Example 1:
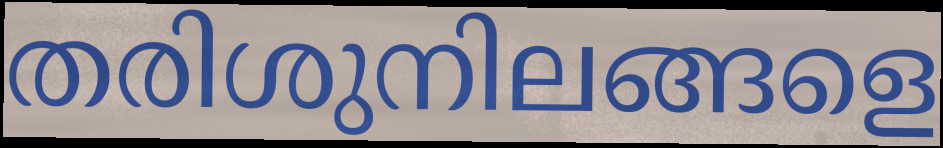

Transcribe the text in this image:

തരിശുനിലങ്ങളെ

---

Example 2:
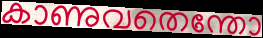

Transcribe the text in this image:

കാണുവതെന്തോ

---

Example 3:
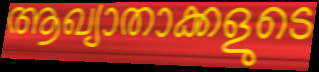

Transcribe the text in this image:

ആഖ്യാതാക്കളുടെ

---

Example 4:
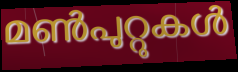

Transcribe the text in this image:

മൺപുറ്റുകൾ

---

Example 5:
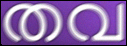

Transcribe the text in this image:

തവ